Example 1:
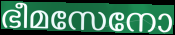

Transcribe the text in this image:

ഭീമസേനോ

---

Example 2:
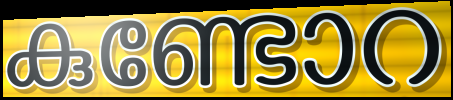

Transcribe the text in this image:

കുണ്ടോറ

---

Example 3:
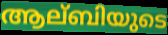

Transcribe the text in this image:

ആല്ബിയുടെ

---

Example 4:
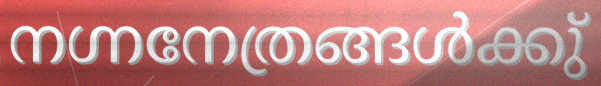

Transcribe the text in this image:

നഗ്നനേത്രങ്ങൾക്കു്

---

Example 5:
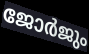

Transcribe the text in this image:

ജോർജും